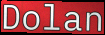
Dolan